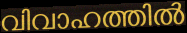
വിവാഹത്തിൽ